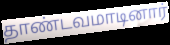
தாண்டவமாடினார்